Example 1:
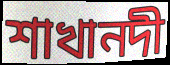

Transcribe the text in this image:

শাখানদী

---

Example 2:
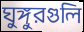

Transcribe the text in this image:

ঘুঙ্গুরগুলি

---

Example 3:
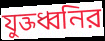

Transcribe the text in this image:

যুক্তধ্বনির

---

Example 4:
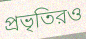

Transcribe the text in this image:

প্রভৃতিরও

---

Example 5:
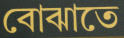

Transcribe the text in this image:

বোঝাতে